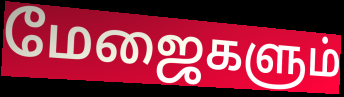
மேஜைகளும்